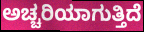
ಅಚ್ಚರಿಯಾಗುತ್ತಿದೆ